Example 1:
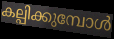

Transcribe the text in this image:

കല്പിക്കുമ്പോൾ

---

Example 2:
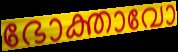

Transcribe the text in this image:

ഭോക്താവോ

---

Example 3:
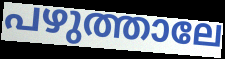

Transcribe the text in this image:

പഴുത്താലേ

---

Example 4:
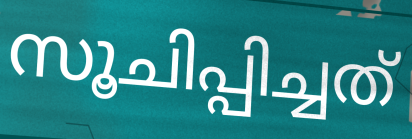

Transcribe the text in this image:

സൂചിപ്പിച്ചത്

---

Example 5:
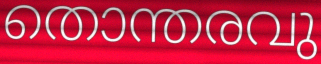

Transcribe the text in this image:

തൊന്തരവു